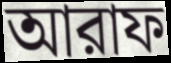
আরাফ